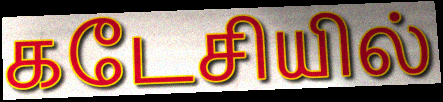
கடேசியில்